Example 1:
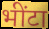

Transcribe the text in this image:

भींटा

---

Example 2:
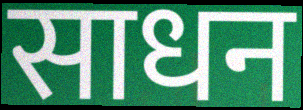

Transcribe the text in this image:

साधन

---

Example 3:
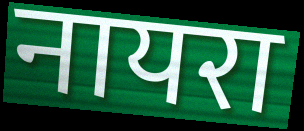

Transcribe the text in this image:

नायरा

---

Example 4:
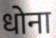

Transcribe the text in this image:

धोना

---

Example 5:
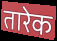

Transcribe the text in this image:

तारेक